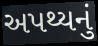
અપથ્યનું